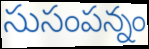
సుసంపన్నం